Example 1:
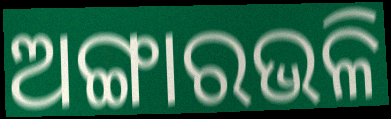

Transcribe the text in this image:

ଅଙ୍ଗାରଭଳି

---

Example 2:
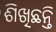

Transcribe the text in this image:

ଶିଖିଛନ୍ତି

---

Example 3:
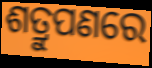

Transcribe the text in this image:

ଶତ୍ରୁପଣରେ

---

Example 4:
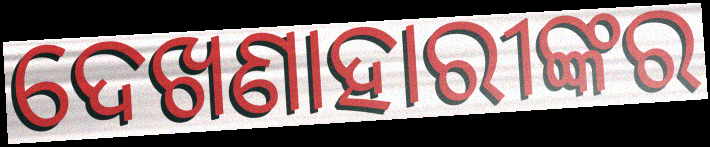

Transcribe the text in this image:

ଦେଖଣାହାରୀଙ୍କର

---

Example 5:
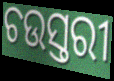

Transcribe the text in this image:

ଚଉସ୍ତରୀ